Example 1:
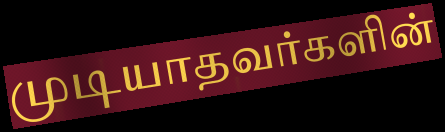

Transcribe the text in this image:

முடியாதவர்களின்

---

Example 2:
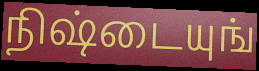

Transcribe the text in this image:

நிஷ்டையுங்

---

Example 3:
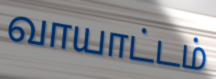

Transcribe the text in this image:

வாயாட்டம்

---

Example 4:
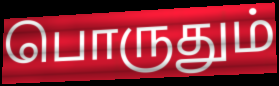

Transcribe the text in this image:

பொருதும்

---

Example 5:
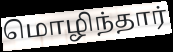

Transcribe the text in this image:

மொழிந்தார்